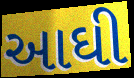
આઘી